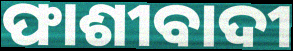
ଫାଶୀବାଦୀ